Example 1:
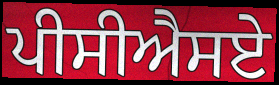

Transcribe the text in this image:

ਪੀਸੀਐਸਏ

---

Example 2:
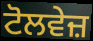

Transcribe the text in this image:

ਟੋਲਵੇਜ਼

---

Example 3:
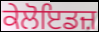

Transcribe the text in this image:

ਕੇਲੋਇਡਜ਼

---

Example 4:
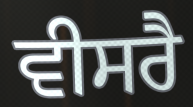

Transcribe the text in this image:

ਵੀਸਰੈ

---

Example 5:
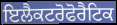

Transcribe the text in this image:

ਇਲੈਕਟਰੋਫੋਰੈਟਿਕ